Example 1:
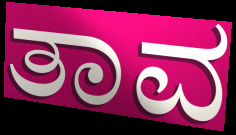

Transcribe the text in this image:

ತಾವ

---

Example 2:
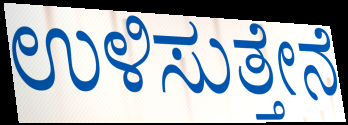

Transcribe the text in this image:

ಉಳಿಸುತ್ತೇನೆ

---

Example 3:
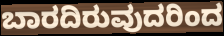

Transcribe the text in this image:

ಬಾರದಿರುವುದರಿಂದ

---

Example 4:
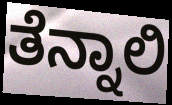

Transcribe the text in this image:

ತೆನ್ನಾಲಿ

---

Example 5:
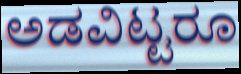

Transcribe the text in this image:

ಅಡವಿಟ್ಟರೂ